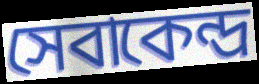
সেবাকেন্দ্র